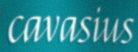
cavasius